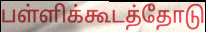
பள்ளிக்கூடத்தோடு